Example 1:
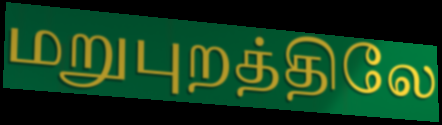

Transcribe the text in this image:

மறுபுறத்திலே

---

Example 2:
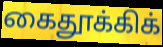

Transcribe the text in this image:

கைதூக்கிக்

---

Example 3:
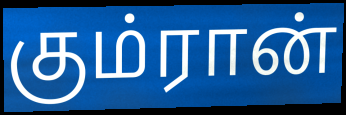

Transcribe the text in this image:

கும்ரான்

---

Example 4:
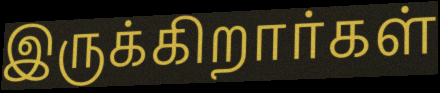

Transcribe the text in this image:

இருக்கிறார்கள்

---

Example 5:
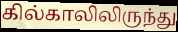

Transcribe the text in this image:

கில்காலிலிருந்து